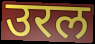
उरल